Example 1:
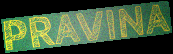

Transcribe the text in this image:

PRAVINA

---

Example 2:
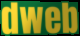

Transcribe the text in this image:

dweb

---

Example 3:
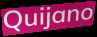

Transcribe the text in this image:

Quijano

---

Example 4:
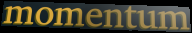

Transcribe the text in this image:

momentum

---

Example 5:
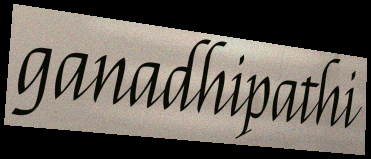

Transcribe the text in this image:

ganadhipathi